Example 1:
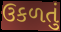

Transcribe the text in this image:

ઉકળતું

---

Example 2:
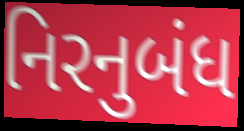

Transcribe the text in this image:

નિરનુબંધ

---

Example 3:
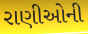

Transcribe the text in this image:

રાણીઓની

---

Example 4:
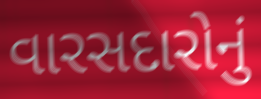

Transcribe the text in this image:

વારસદારોનું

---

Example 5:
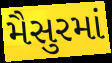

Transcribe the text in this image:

મૈસુરમાં